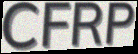
CFRP